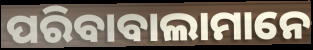
ପରିବାବାଲାମାନେ